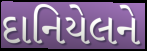
દાનિયેલને